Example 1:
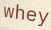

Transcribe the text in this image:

whey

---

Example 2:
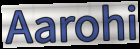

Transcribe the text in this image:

Aarohi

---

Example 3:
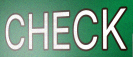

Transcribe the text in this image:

CHECK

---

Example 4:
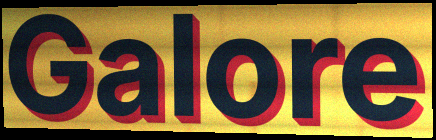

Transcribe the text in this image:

Galore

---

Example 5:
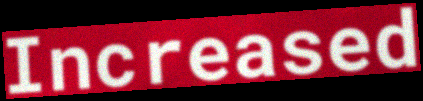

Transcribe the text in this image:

Increased